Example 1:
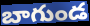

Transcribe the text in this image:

బాగుండ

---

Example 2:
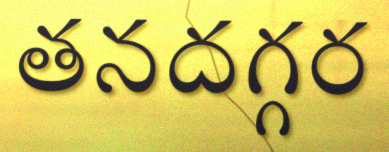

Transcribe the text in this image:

తనదగ్గర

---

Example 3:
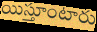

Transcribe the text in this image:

యిస్తూంటారు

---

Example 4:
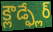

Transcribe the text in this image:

క్లౌడ్ఫ్లేర్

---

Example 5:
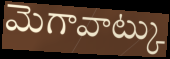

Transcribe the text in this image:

మెగావాట్కు